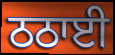
ਠਠਾਈ